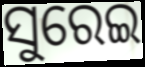
ସୁରେଇ